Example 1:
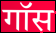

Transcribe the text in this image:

गॉस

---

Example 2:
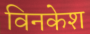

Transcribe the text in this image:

विनकेश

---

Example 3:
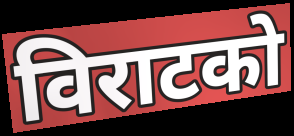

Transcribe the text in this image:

विराटको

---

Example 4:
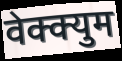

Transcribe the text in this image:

वेक्क्युम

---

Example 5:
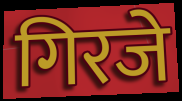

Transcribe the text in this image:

गिरजे